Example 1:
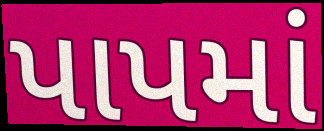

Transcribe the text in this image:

પાપમાં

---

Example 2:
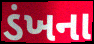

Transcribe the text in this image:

ડંખના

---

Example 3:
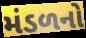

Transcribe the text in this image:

મંડળનો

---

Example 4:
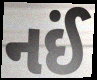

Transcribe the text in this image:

નઈં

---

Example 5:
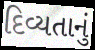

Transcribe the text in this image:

દિવ્યતાનું